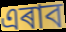
এৰাব